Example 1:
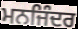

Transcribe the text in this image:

ਮਨਜਿੰਦਰ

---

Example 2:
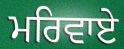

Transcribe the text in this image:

ਮਰਿਵਾਏ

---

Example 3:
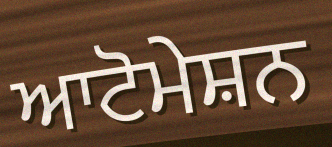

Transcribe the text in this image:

ਆਟੋਮੇਸ਼ਨ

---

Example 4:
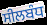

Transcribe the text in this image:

ਸੀਲਬੰਧ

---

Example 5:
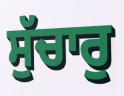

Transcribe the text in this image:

ਸੁੱਚਾਰੁ